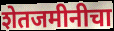
शेतजमीनीचा